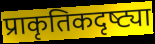
प्राकृतिकदृष्ट्या